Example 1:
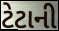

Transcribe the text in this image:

ટેટાની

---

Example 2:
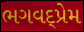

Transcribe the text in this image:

ભગવદ્પ્રેમ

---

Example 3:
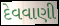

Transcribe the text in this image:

દેવવાણી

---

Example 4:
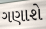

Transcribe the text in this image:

ગણાશે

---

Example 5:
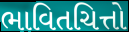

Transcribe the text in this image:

ભાવિતચિત્તો